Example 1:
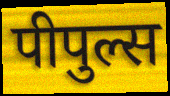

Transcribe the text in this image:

पीपुल्स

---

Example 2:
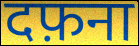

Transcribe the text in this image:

दफ़ना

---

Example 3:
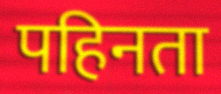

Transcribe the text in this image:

पहिनता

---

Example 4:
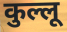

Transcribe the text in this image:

कुल्लू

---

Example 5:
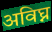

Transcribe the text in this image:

अविघ्न